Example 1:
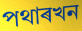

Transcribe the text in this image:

পথাৰখন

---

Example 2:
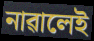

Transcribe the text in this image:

নাৱালেই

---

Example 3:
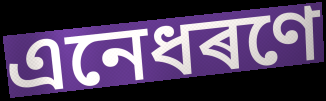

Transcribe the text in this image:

এনেধৰণে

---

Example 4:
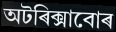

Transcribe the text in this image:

অটৰিক্সাবোৰ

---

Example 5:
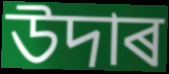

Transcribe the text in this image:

উদাৰ